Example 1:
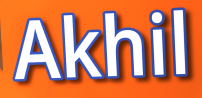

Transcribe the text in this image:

Akhil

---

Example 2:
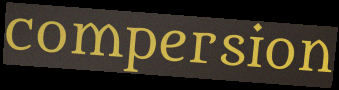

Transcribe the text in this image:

compersion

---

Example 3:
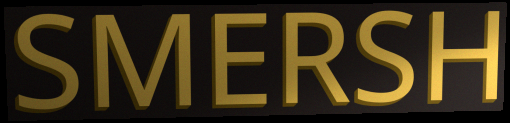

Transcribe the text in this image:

SMERSH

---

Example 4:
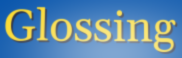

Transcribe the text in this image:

Glossing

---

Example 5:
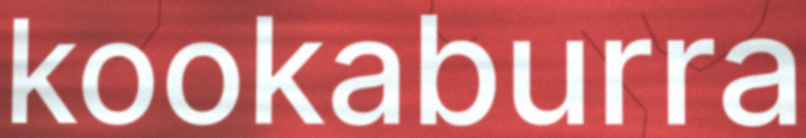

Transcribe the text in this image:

kookaburra